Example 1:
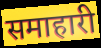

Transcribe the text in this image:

समाहारी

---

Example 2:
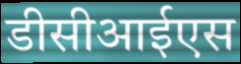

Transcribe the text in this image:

डीसीआईएस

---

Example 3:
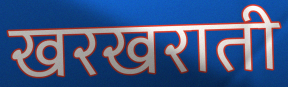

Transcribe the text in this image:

खरखराती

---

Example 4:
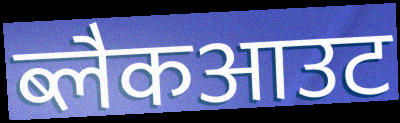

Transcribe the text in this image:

ब्लैकआउट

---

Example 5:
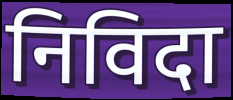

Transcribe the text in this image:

निविदा